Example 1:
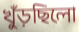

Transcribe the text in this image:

খুঁড়ছিলো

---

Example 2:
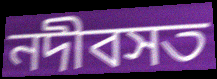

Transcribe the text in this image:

নদীবসত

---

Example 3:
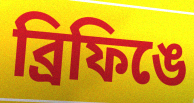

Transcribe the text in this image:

ব্রিফিঙে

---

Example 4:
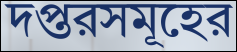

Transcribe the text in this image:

দপ্তরসমূহের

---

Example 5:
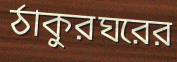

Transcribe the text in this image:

ঠাকুরঘরের